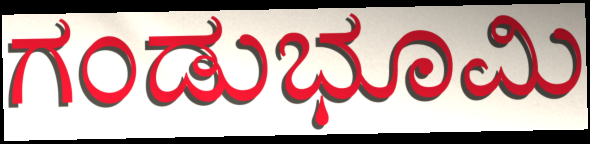
ಗಂಡುಭೂಮಿ